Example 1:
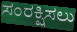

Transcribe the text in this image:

ಸಂರಕ್ಷಿಸಲು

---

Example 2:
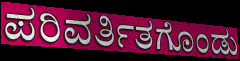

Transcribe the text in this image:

ಪರಿವರ್ತಿತಗೊಂಡು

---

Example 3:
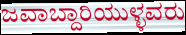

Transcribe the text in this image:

ಜವಾಬ್ದಾರಿಯುಳ್ಳವರು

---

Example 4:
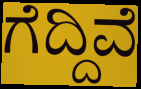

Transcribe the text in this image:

ಗೆದ್ದಿವೆ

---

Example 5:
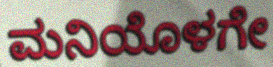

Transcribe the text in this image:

ಮನಿಯೊಳಗೇ